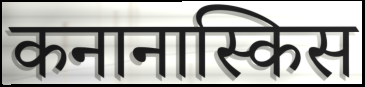
कनानास्किस